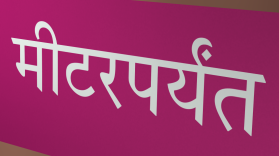
मीटरपर्यंत